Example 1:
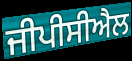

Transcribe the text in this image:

ਜੀਪੀਸੀਐਲ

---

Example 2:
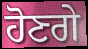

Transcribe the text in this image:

ਹੋਣਗੇ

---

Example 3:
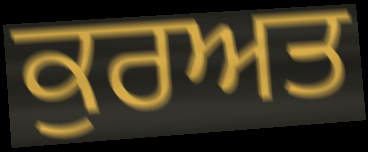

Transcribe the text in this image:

ਕੁਰਅਤ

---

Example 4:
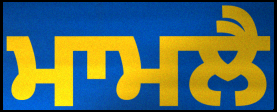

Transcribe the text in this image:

ਮਾਮਲੈ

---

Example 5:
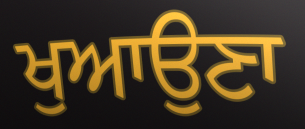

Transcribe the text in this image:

ਖੁਆਉਣਾ